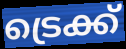
ട്രെക്ക്